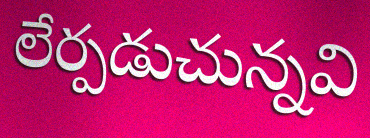
లేర్పడుచున్నవి